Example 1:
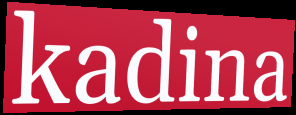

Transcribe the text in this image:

kadina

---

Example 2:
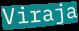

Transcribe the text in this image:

Viraja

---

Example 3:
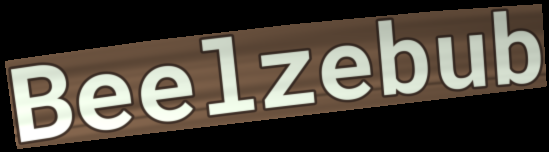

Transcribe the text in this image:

Beelzebub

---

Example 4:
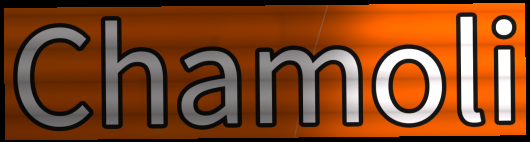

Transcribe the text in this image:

Chamoli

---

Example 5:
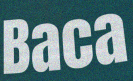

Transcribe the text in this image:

Baca